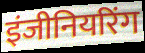
इंजीनियरिंग